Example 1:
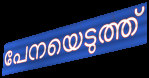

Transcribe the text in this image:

പേനയെടുത്ത്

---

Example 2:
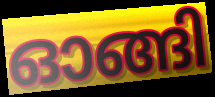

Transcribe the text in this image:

ഓങ്ങി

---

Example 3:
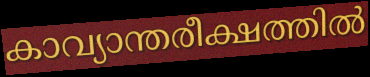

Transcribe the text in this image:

കാവ്യാന്തരീക്ഷത്തിൽ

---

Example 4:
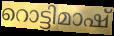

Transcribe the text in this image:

റൊട്ടിമാഷ്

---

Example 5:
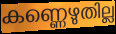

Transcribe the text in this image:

കണ്ണെഴുതില്ല